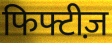
फिफ्टीज़